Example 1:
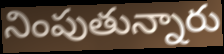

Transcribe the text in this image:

నింపుతున్నారు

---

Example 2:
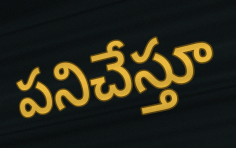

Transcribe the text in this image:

పనిచేస్తూ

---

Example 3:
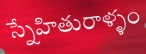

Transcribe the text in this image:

స్నేహితురాళ్ళం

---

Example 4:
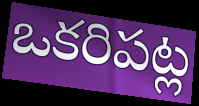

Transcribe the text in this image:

ఒకరిపట్ల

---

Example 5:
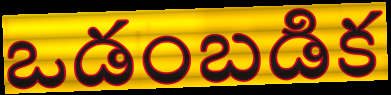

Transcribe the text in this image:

ఒడంబడిక